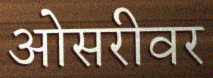
ओसरीवर